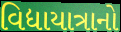
વિદ્યાયાત્રાનો